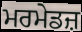
ਮਰਮੇਡਜ਼